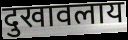
दुखावलाय